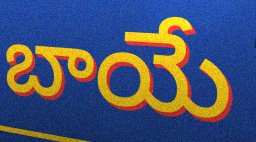
బాయే